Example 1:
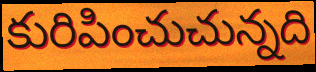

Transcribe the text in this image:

కురిపించుచున్నది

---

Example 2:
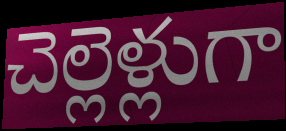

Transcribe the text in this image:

చెల్లెళ్లుగా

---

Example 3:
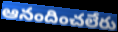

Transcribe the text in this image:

ఆనందించలేరు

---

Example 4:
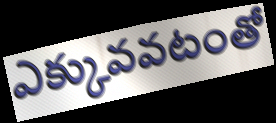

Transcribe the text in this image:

ఎక్కువవటంతో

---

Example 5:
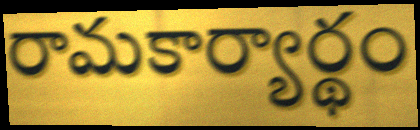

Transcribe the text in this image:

రామకార్యార్థం